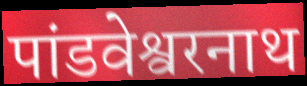
पांडवेश्वरनाथ